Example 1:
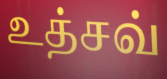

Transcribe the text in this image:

உத்சவ்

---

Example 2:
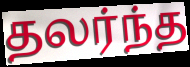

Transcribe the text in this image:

தலர்ந்த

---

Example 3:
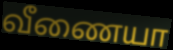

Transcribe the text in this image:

வீணையா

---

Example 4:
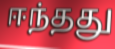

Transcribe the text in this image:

ஈந்தது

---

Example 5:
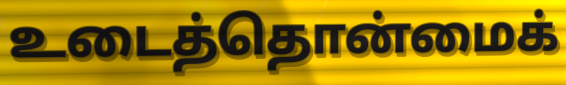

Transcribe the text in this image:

உடைத்தொன்மைக்